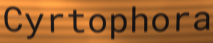
Cyrtophora